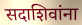
सदाशिवांना